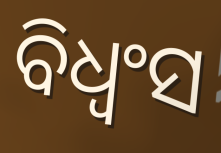
ବିଧ୍ଵଂସ